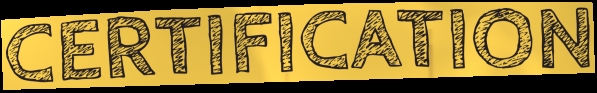
CERTIFICATION